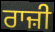
ਰਾਜ਼ੀ